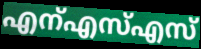
എന്എസ്എസ്